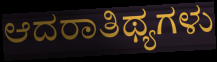
ಆದರಾತಿಥ್ಯಗಳು